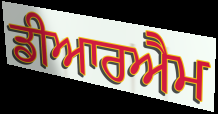
ਡੀਆਰਐਮ